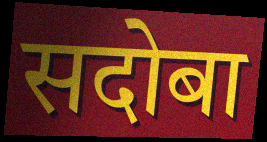
सदोबा